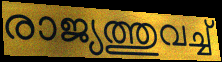
രാജ്യത്തുവച്ച്